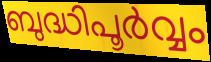
ബുദ്ധിപൂർവ്വം